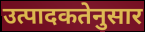
उत्पादकतेनुसार